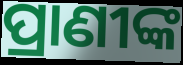
ପ୍ରାଣୀଙ୍କ